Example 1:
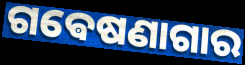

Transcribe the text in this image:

ଗଵେଷଣାଗାର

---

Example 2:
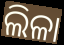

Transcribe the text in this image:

ଲିଳା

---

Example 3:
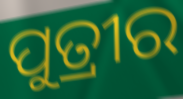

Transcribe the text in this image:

ପୁତ୍ରୀର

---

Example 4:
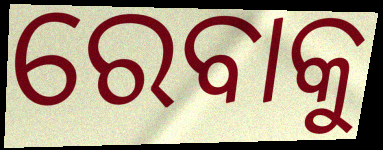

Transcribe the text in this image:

ରେବାକୁ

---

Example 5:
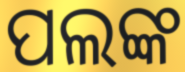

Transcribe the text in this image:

ପଲଙ୍କ